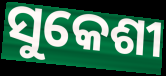
ସୁକେଶୀ